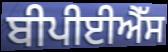
ਬੀਪੀਈਐੱਸ